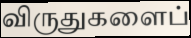
விருதுகளைப்